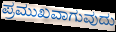
ಪ್ರಮುಖವಾಗುವುದು